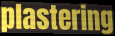
plastering